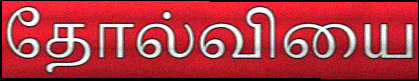
தோல்வியை